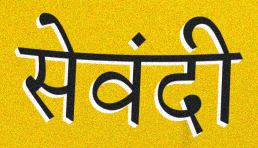
सेवंदी